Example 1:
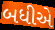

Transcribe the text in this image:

બધીએ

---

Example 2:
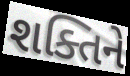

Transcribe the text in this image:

શક્તિને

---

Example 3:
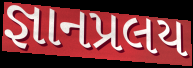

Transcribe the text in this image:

જ્ઞાનપ્રલય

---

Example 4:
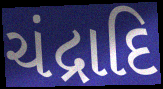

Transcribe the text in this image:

ચંદ્રાદિ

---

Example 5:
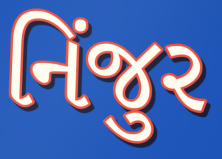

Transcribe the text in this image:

નિંજુર